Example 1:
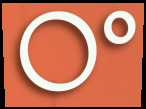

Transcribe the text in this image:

ଠଂ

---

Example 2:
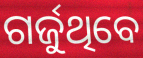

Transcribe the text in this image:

ଗର୍ଜୁଥିବେ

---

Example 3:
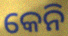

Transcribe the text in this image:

କେନି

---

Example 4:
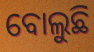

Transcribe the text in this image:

ବୋଲୁଛି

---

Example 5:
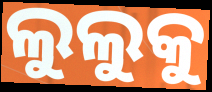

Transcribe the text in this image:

ଲୁଲୁକୁ